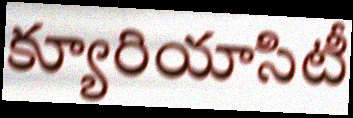
క్యూరియాసిటీ